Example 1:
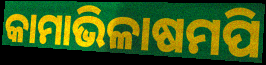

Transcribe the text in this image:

କାମାଭିଳାଷମପି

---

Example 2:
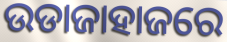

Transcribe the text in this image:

ଉଡାଜାହାଜରେ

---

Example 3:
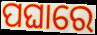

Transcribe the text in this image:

ପଘାରେ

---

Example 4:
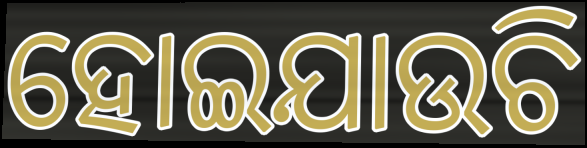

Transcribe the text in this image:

ହୋଇଯାଉଚି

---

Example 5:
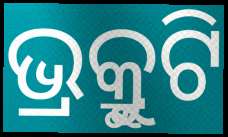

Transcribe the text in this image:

ଭ୍ର୍ରୁକୁଟି